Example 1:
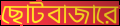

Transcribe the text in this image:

ছোটবাজারে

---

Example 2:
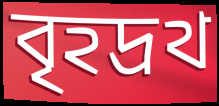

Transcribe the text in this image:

বৃহদ্রথ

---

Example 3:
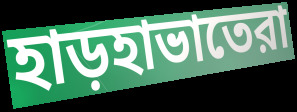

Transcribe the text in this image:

হাড়হাভাতেরা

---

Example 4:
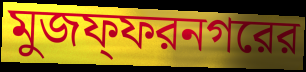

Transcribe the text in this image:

মুজফ্ফরনগরের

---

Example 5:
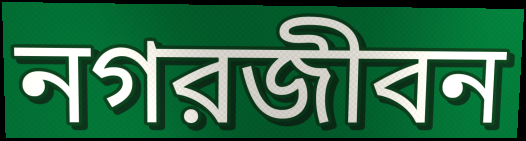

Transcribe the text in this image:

নগরজীবন